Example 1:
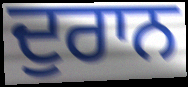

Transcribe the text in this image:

ਦੁਰਾਨ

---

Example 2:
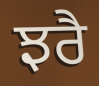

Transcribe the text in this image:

ਝਰੈ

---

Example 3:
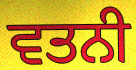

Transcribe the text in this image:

ਵਤਨੀ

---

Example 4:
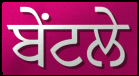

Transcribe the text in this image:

ਬੇਂਟਲੇ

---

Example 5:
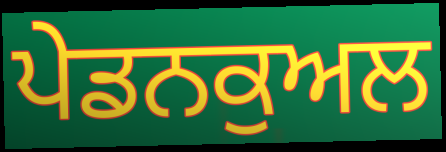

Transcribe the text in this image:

ਪੇਡਨਕੁਅਲ